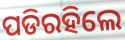
ପଡିରହିଲେ